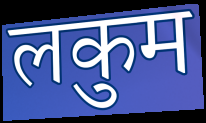
लकुम